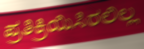
ಪ್ರತಿಕ್ರಿಯಿಸಿರಲಿಲ್ಲ